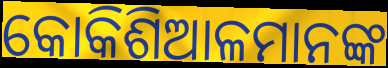
କୋକିଶିଆଳମାନଙ୍କ